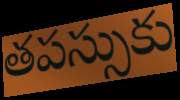
తపస్సుకు